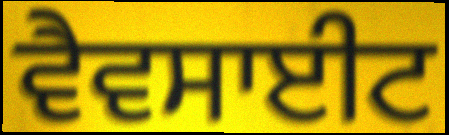
ਵੈਵਸਾਈਟ